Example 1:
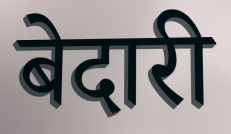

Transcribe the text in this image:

बेदारी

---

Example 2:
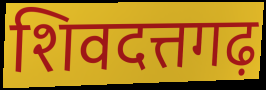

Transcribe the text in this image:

शिवदत्तगढ़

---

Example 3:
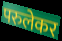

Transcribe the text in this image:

परुलेकर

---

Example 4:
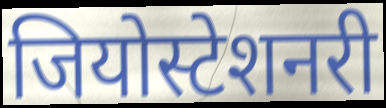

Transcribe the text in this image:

जियोस्टेशनरी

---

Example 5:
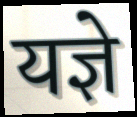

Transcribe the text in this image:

यज्ञे